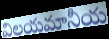
విలయమానీయ